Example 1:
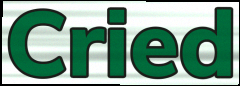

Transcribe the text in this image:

Cried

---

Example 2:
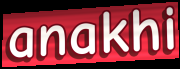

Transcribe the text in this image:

anakhi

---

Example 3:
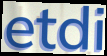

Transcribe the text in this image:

etdi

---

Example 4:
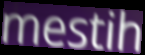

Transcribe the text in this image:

mestih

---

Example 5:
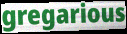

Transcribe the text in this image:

gregarious